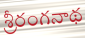
శ్రీరంగనాథ